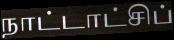
நாட்டாட்சிப்